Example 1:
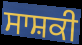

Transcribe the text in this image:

ਸਾਸ਼ਕੀ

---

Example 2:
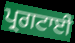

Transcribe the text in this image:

ਪ੍ਰ੍ਰਗਟਾਈ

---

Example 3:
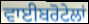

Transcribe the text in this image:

ਵਾਈਬਰੋਟੇਲਾਂ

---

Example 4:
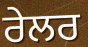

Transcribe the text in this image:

ਰੇਲਰ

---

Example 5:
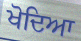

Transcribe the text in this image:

ਖੋਦਿਆ